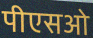
पीएसओ